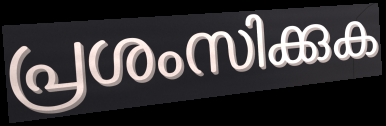
പ്രശംസിക്കുക